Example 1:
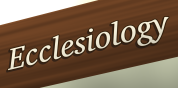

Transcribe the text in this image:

Ecclesiology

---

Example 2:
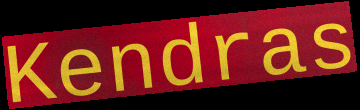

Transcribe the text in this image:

Kendras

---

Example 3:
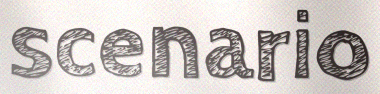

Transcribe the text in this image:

scenario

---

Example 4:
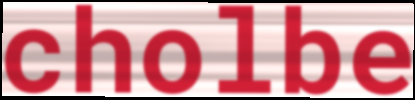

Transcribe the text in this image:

cholbe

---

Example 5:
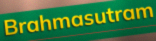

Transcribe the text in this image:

Brahmasutram